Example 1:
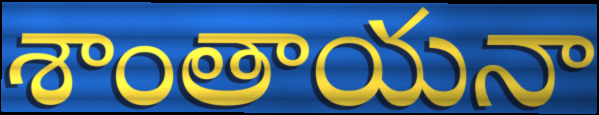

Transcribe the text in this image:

శాంతాయనా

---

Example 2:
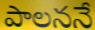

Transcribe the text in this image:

పాలననే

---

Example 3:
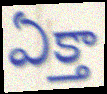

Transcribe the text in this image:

ఏక్తా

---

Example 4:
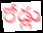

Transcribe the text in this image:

రోడ్లు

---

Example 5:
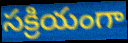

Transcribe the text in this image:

సక్రియంగా